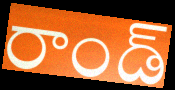
రాండ్